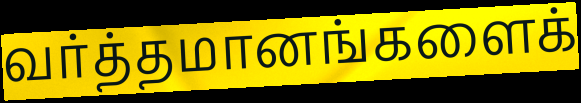
வர்த்தமானங்களைக்